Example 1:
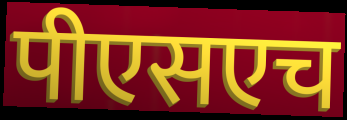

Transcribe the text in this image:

पीएसएच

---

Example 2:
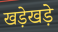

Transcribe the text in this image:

खड़ेखड़े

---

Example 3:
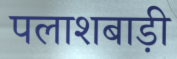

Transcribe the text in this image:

पलाशबाड़ी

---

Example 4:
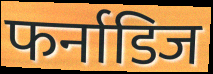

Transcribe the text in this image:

फर्नाडिज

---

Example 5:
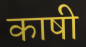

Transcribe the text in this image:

काषी